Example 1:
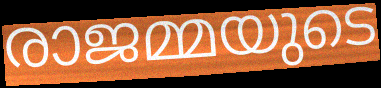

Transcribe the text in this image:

രാജമ്മയുടെ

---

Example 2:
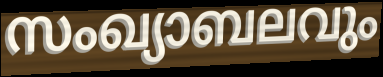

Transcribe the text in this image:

സംഖ്യാബലവും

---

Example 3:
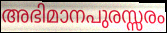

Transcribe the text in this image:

അഭിമാനപുരസ്സരം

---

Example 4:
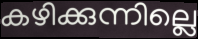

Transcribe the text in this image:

കഴിക്കുന്നില്ലെ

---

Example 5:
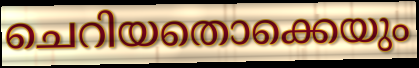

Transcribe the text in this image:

ചെറിയതൊക്കെയും